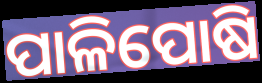
ପାଳିପୋଷି